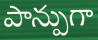
పాన్పుగా